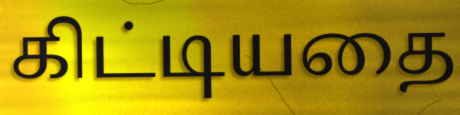
கிட்டியதை